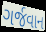
ગર્જવાન